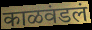
काळवंडलं